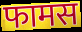
फामस